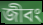
জীবং